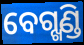
ବେଗ୍ଖଣ୍ଡି